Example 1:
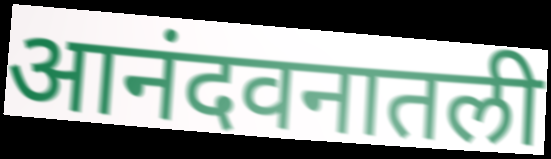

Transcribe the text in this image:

आनंदवनातली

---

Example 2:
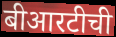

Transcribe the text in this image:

बीआरटीची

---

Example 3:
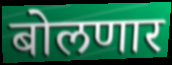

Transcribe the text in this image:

बोलणार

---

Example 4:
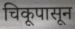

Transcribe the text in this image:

चिकूपासून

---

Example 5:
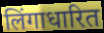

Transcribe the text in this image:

लिंगाधारित